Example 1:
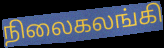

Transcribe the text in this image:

நிலைகலங்கி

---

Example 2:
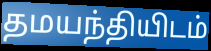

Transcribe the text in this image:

தமயந்தியிடம்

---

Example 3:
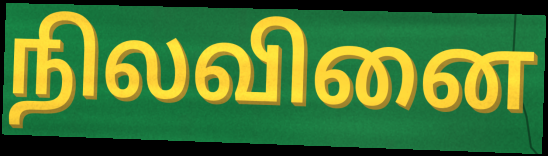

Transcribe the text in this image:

நிலவினை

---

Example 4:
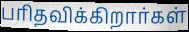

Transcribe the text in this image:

பரிதவிக்கிறார்கள்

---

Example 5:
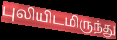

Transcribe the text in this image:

புலியிடமிருந்து